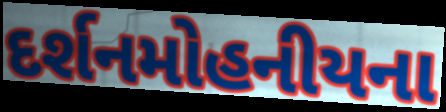
દર્શનમોહનીયના